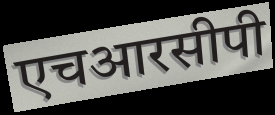
एचआरसीपी